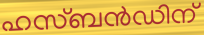
ഹസ്ബൻഡിന്